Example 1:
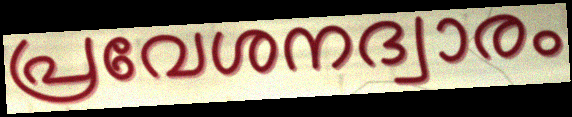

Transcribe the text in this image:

പ്രവേശനദ്വാരം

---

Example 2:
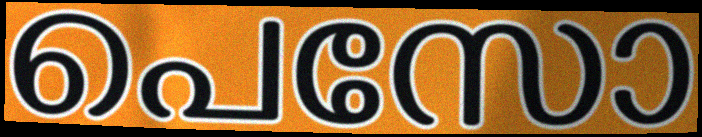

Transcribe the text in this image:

പെസോ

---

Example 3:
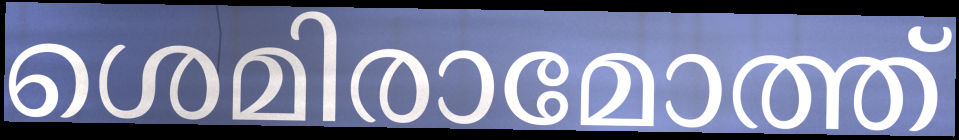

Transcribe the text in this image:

ശെമിരാമോത്ത്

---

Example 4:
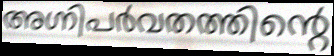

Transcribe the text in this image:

അഗ്നിപർവതത്തിന്റെ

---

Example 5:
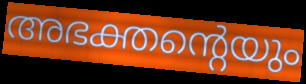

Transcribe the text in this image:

അഭക്തന്റെയും